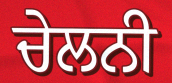
ਚੇਲਨੀ